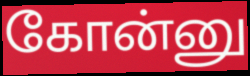
கோன்னு